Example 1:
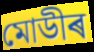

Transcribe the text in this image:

মোডীৰ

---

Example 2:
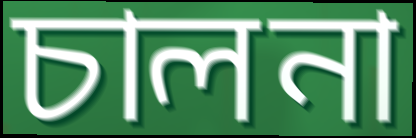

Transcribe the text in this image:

চালনা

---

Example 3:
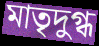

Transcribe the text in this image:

মাতৃদুগ্ধ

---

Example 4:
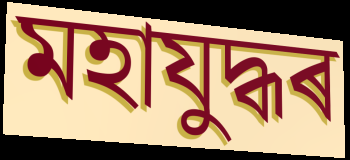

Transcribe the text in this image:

মহাযুদ্ধৰ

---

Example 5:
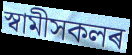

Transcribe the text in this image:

স্বামীসকলৰ